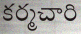
కర్మచారి